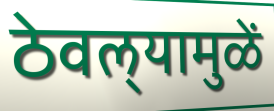
ठेवल्यामुळें